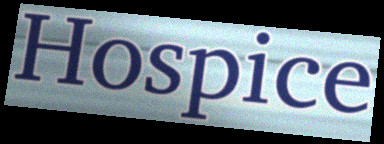
Hospice